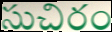
సుచిరం